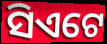
ସିଏଟେ